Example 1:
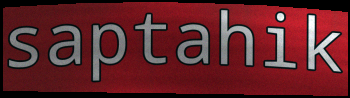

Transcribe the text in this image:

saptahik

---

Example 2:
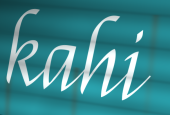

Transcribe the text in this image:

kahi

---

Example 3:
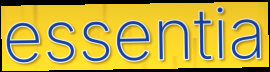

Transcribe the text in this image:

essentia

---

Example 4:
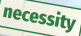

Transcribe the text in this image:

necessity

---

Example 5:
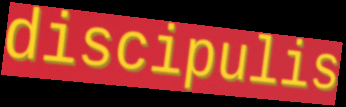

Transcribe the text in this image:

discipulis